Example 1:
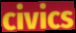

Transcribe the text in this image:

civics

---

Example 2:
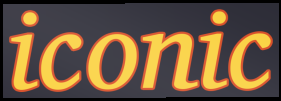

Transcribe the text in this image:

iconic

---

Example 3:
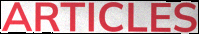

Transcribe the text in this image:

ARTICLES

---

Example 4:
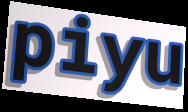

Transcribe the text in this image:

piyu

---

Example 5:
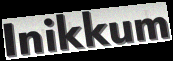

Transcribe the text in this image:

Inikkum